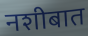
नशीबात